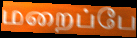
மறைப்பே